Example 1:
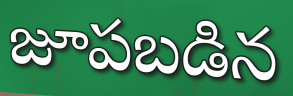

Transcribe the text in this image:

జూపబడిన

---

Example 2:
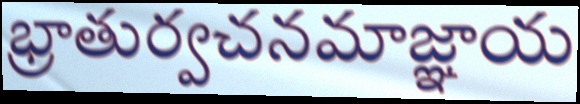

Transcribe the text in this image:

భ్రాతుర్వచనమాజ్ఞాయ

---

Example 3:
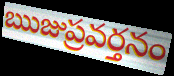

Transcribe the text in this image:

ఋజుప్రవర్తనం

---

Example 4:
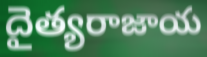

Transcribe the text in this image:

దైత్యరాజాయ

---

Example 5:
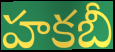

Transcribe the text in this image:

హకబీ